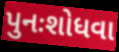
પુનઃશોધવા